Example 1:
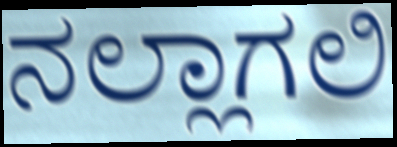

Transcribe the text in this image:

ನಲ್ಲಾಗಲಿ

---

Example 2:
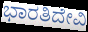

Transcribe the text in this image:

ಭಾರತಿದೇವಿ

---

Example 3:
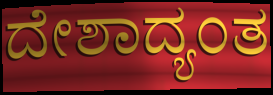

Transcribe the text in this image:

ದೇಶಾದ್ಯಂತ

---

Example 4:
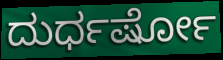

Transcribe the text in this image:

ದುರ್ಧರ್ಷೋ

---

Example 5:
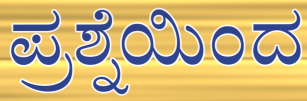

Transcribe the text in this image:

ಪ್ರಶ್ನೆಯಿಂದ